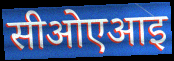
सीओएआइ